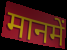
मानमें